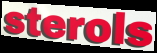
sterols